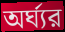
অর্ঘ্যর